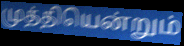
முத்தியென்றும்